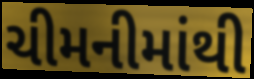
ચીમનીમાંથી